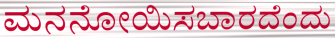
ಮನನೋಯಿಸಬಾರದೆಂದು